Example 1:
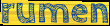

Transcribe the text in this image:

rumen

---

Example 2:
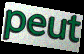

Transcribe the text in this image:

peut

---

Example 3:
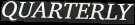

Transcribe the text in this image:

QUARTERLY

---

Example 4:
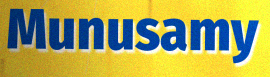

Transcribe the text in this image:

Munusamy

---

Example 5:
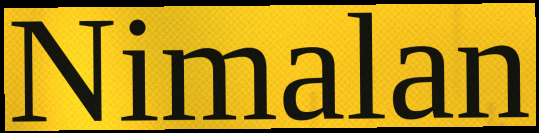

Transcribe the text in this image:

Nimalan